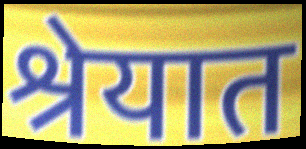
श्रेयात